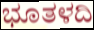
ಭೂತಳದಿ